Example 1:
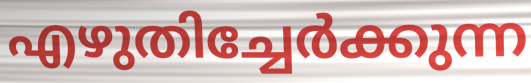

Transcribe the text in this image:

എഴുതിച്ചേർക്കുന്ന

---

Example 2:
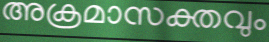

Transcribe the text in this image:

അക്രമാസക്തവും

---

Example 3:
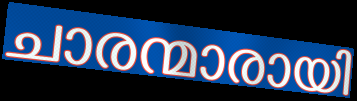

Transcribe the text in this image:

ചാരന്മാരായി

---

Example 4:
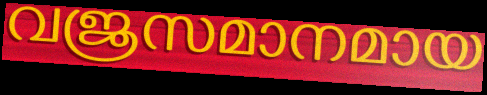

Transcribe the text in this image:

വജ്രസമാനമായ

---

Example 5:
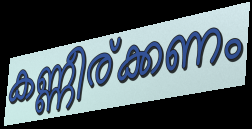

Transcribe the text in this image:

കണ്ണീര്ക്കണം